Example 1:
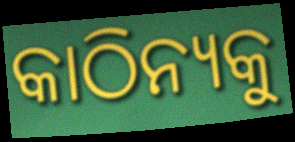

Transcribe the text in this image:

କାଠିନ୍ୟକୁ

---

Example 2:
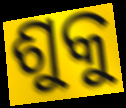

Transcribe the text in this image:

ଶୁକୁ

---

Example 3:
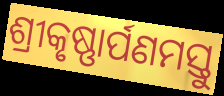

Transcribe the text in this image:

ଶ୍ରୀକୃଷ୍ଣାର୍ପଣମସ୍ତୁ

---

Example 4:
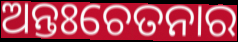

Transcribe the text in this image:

ଅନ୍ତଃଚେତନାର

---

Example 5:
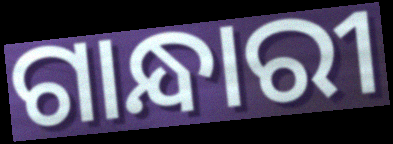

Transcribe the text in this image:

ଗାନ୍ଧାରୀ